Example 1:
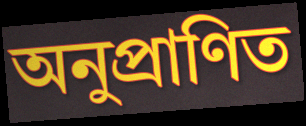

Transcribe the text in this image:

অনুপ্রাণিত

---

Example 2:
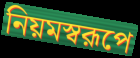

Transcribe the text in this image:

নিয়মস্বরূপে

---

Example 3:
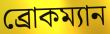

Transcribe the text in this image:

ব্রোকম্যান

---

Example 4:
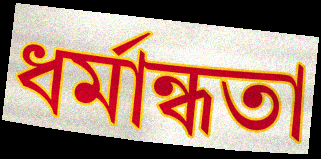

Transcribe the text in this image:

ধর্মান্ধতা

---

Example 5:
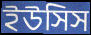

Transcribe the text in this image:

ইউসিস